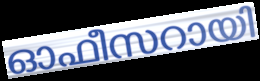
ഓഫീസറായി